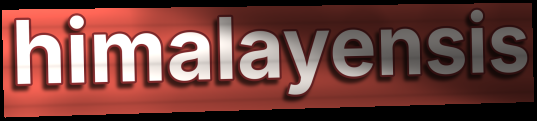
himalayensis